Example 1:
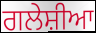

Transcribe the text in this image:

ਗਲੇਸ਼ੀਆ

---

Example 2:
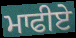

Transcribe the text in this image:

ਮਾਫੀਏ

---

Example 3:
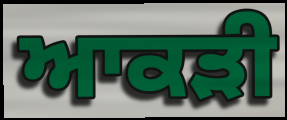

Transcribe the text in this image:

ਆਕੜੀ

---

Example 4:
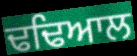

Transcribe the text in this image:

ਢਢਿਆਲ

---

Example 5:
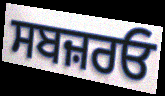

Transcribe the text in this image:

ਸਬਜ਼ਰਓ